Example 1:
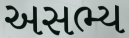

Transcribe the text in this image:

અસભ્ય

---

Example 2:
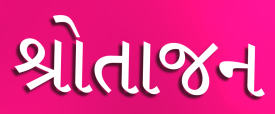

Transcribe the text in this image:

શ્રોતાજન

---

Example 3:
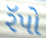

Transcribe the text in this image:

રૅપો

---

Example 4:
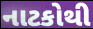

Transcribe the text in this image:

નાટકોથી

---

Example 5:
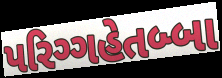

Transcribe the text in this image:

પરિગ્ગહેતબ્બા